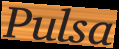
Pulsa